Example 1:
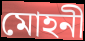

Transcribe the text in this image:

মোহনী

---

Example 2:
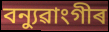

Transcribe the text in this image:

বন্যুৱাংগীৰ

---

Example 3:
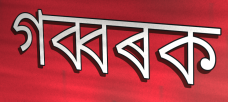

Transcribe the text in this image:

গব্বৰক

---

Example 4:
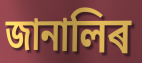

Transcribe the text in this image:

জানালিৰ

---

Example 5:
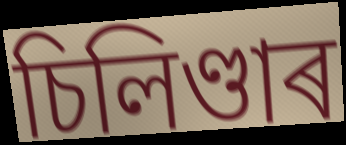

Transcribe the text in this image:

চিলিণ্ডাৰ